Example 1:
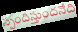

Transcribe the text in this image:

స్పందిస్తుందనేది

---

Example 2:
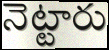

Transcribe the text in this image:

నెట్టారు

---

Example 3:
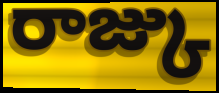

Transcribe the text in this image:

రాజ్కు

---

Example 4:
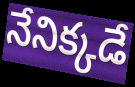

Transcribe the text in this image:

నేనిక్కడే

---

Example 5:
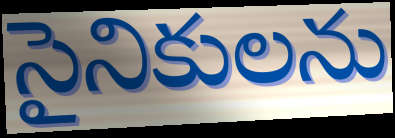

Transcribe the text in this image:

సైనికులను